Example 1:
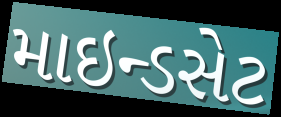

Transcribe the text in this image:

માઇન્ડસેટ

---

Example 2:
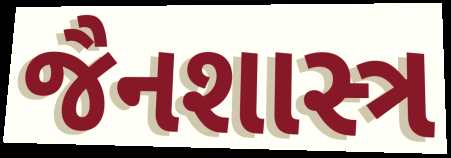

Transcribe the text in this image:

જૈનશાસ્ત્ર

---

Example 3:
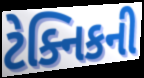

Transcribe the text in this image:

ટેક્નિકની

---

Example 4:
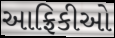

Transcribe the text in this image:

આફ્રિકીઓ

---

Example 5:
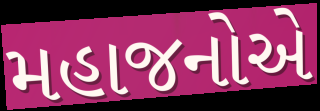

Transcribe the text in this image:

મહાજનોએ